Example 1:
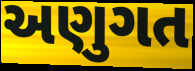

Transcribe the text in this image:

અણુગત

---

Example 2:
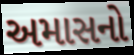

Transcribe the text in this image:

અમાસનો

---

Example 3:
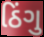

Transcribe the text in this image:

ઠિંગુ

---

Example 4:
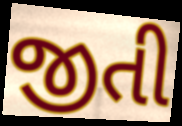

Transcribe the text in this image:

જીતી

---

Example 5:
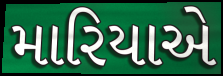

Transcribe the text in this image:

મારિયાએ